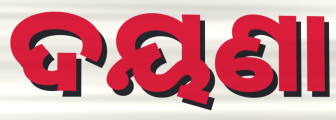
ଦୟଣା